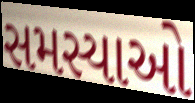
સમસ્યાઓ